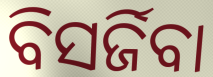
ବିସର୍ଜିବା